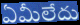
ఏమీలేదు